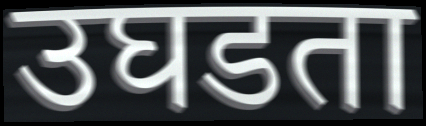
उघडता